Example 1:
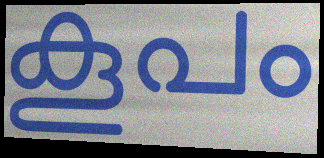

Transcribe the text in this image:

കൂപം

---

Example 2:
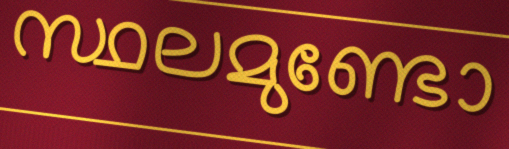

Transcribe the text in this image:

സ്ഥലമുണ്ടോ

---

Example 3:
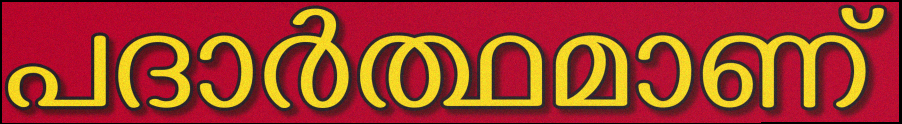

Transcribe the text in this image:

പദാർത്ഥമാണ്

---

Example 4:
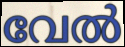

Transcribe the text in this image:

വേൽ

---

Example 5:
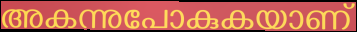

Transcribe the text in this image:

അകന്നുപോകുകയാണ്